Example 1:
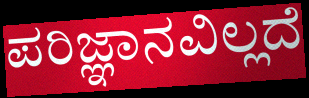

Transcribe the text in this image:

ಪರಿಜ್ಞಾನವಿಲ್ಲದೆ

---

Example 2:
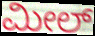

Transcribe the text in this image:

ಮೀಲ್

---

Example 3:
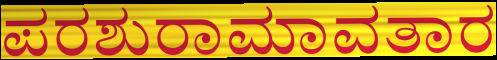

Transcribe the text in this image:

ಪರಶುರಾಮಾವತಾರ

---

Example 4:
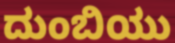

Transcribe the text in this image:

ದುಂಬಿಯು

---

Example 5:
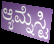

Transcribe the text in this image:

ಆ್ಯಮ್ನೆಸ್ಟಿ